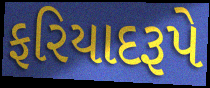
ફરિયાદરૂપે